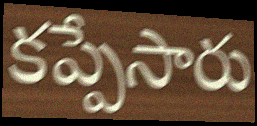
కప్పేసారు